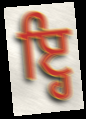
ਇ੍ਹ